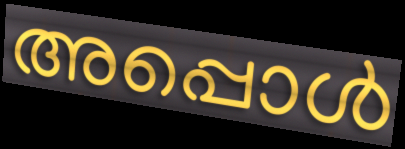
അപ്പൊൾ